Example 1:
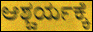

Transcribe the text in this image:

ಆಶ್ಚರ್ಯಕ್ಕೆ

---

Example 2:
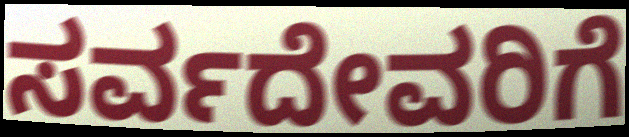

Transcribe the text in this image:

ಸರ್ವದೇವರಿಗೆ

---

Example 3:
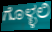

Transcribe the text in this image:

ಗೊಳ್ಳಲಿ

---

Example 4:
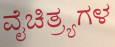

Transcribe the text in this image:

ವೈಚಿತ್ರ್ಯಗಳ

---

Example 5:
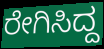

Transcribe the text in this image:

ರೇಗಿಸಿದ್ದ